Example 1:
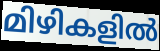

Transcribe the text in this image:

മിഴികളിൽ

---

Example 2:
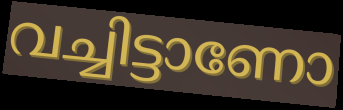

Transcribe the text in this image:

വച്ചിട്ടാണോ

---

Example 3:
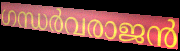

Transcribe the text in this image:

ഗന്ധർവരാജൻ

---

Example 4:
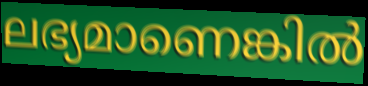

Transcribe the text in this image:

ലഭ്യമാണെങ്കിൽ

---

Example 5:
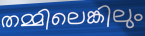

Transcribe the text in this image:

തമ്മിലെങ്കിലും